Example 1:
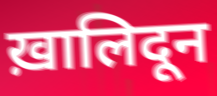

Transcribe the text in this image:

ख़ालिदून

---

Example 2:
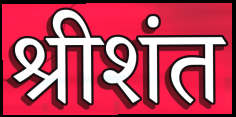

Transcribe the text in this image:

श्रीशंत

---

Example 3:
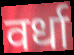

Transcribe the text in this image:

वर्धा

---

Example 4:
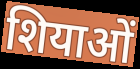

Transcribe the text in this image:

शियाओं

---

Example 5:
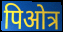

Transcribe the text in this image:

पिओत्र